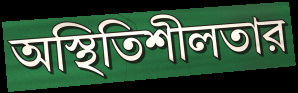
অস্থিতিশীলতার